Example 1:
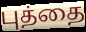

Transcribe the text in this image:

புத்தை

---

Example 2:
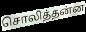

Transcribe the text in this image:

சொலித்தன்ன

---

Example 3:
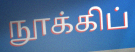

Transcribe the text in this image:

நூக்கிப்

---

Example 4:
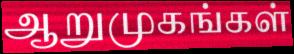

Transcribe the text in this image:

ஆறுமுகங்கள்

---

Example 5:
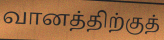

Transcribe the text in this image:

வானத்திற்குத்